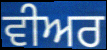
ਵੀਅਰ